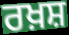
ਰਖ਼ਸ਼